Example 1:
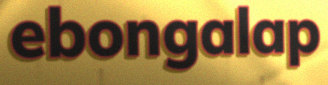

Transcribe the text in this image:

ebongalap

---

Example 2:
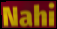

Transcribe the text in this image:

Nahi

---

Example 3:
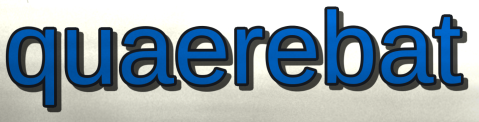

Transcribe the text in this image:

quaerebat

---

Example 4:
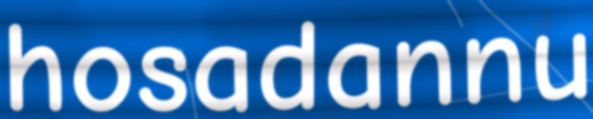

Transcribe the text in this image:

hosadannu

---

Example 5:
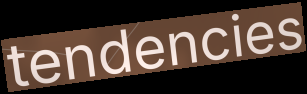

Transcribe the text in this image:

tendencies